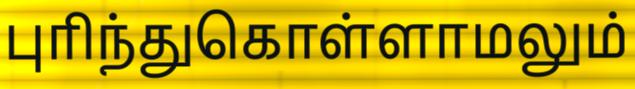
புரிந்துகொள்ளாமலும்